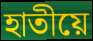
হাতীয়ে